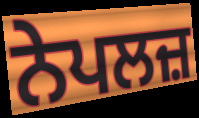
ਨੇਪਲਜ਼